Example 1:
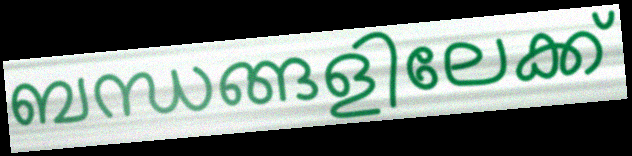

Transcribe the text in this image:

ബന്ധങ്ങളിലേക്ക്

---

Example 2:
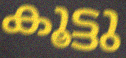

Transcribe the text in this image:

കൂട്ടു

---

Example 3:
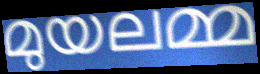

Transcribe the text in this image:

മുയലമ്മ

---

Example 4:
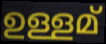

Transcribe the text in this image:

ഉള്ളമ്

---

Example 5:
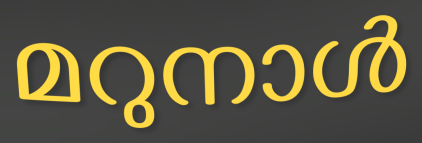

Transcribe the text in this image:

മറുനാൾ